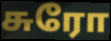
சுரோ